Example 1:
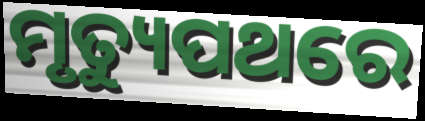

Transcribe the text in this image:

ମୃତ୍ୟୁପଥରେ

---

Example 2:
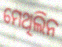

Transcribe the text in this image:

ମେଥିଲିନ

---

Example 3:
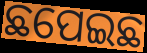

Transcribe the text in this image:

ଛପେଇଛ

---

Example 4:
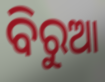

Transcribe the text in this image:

ବିରୁଆ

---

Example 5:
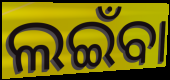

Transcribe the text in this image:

ଲଇଁବା